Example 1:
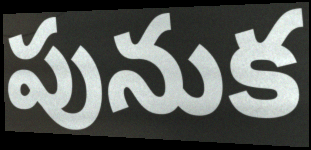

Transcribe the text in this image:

పునుక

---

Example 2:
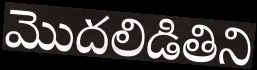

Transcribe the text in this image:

మొదలిడితిని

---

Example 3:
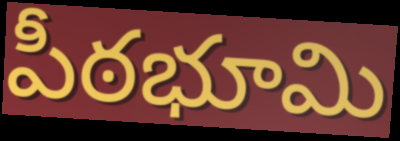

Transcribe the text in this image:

పీఠభూమి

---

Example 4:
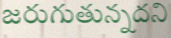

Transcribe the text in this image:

జరుగుతున్నదని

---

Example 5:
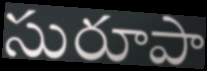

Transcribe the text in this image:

సురూపా